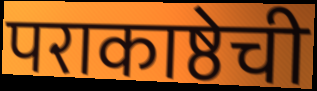
पराकाष्ठेची